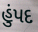
હુંપદ